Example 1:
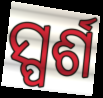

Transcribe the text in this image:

ସ୍ପର୍ଶ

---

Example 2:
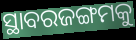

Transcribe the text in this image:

ସ୍ଥାବରଜଙ୍ଗମକୁ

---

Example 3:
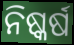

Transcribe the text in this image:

ନିଷ୍କର୍ଷ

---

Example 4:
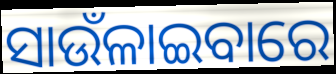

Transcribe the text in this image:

ସାଉଁଳାଇବାରେ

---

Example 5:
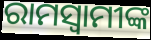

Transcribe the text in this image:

ରାମସ୍ୱାମୀଙ୍କ